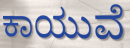
ಕಾಯುವೆ